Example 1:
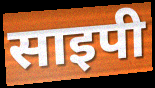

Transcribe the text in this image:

साइपी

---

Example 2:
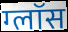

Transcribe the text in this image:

ग्लॉस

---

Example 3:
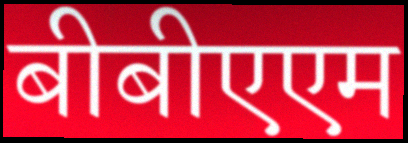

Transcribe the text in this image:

बीबीएएम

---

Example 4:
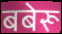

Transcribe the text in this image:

बबेरू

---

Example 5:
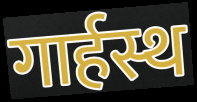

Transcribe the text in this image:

गार्हस्थ